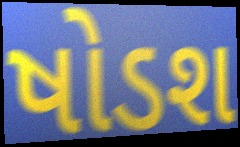
ષોડશ